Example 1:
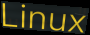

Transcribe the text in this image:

Linux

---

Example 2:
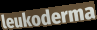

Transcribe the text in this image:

leukoderma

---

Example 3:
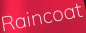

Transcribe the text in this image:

Raincoat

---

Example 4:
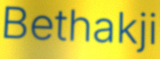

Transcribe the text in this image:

Bethakji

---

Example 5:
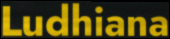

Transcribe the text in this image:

Ludhiana